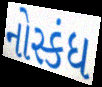
નોસ્કંધ